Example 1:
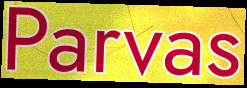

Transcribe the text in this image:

Parvas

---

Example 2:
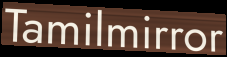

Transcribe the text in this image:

Tamilmirror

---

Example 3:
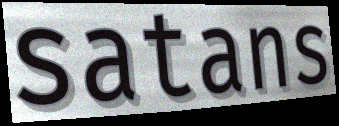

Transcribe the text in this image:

satans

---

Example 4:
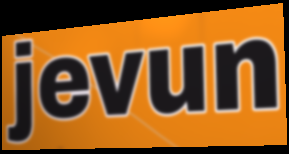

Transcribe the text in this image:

jevun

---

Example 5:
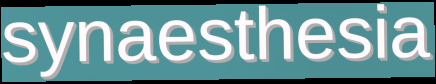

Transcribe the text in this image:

synaesthesia